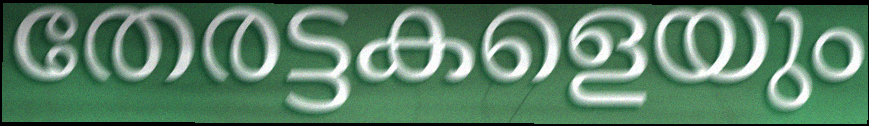
തേരട്ടകളെയും